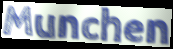
Munchen